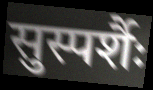
सुस्पर्शैः